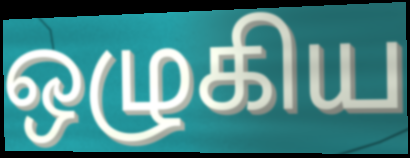
ஒழுகிய